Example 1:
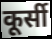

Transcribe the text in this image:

कूर्सी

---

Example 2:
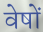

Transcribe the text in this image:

वेषों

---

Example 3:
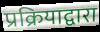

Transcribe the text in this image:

प्रक्रियाद्वारा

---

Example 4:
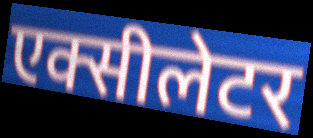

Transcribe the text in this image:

एक्सीलेटर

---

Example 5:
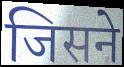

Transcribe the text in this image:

जिसने